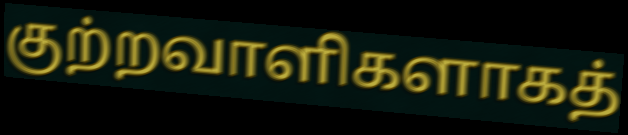
குற்றவாளிகளாகத்